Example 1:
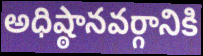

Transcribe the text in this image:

అధిష్ఠానవర్గానికి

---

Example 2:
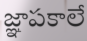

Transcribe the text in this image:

జ్ఞాపకాలే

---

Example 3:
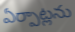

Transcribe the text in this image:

ఏర్పాట్లను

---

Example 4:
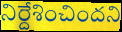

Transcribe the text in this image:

నిర్దేశించిందని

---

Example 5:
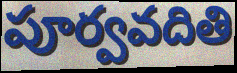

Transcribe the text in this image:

పూర్వవదితి